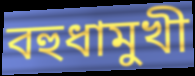
বহুধামুখী